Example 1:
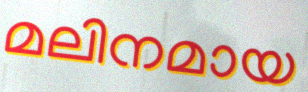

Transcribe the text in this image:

മലിനമായ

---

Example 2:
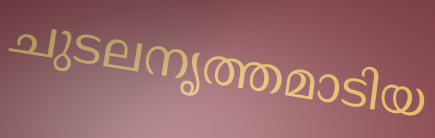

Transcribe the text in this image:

ചുടലനൃത്തമാടിയ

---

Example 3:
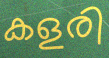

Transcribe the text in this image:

കളരി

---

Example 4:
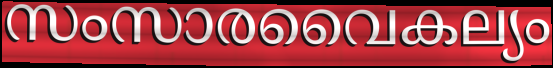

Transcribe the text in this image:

സംസാരവൈകല്യം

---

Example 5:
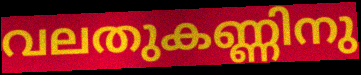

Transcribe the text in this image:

വലതുകണ്ണിനു